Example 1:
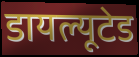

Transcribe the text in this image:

डायल्यूटेड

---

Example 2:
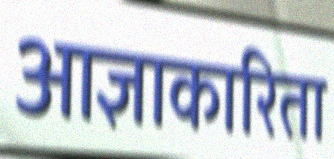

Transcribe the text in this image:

आज्ञाकारिता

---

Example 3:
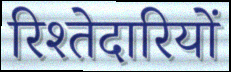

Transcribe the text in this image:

रिश्तेदारियों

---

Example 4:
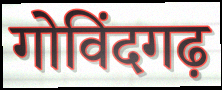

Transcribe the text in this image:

गोविंदगढ़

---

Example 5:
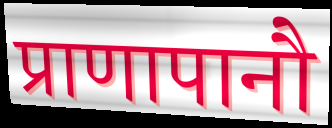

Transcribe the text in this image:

प्राणापानौ